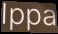
Ippa